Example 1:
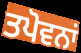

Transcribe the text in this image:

ਤਪੋਵਨਾਂ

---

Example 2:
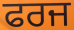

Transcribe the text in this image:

ਫਰਜ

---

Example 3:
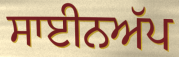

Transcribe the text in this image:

ਸਾਈਨਅੱਪ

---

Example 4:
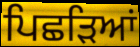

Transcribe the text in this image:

ਪਿਛੜਿਆਂ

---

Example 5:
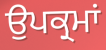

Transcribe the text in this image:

ਉਪਕ੍ਰਮਾਂ